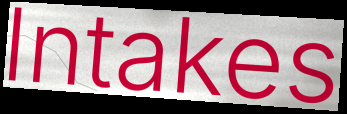
Intakes